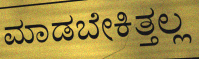
ಮಾಡಬೇಕಿತ್ತಲ್ಲ